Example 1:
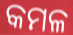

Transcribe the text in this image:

କମଳ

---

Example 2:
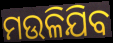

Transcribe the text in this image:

ମଉଳିଯିବ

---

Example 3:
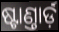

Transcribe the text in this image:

ଷ୍ଟାଣ୍ତାର୍ଡ଼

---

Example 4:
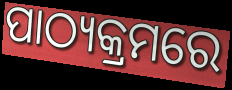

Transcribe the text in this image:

ପାଠ୍ୟକ୍ରମରେ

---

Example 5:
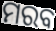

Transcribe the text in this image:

ମରବ